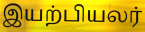
இயற்பியலர்